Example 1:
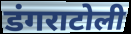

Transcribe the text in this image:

डंगराटोली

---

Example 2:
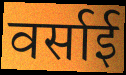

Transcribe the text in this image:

वर्साई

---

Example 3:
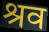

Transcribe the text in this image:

श्रव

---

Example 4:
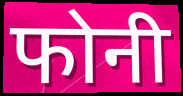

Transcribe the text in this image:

फोनी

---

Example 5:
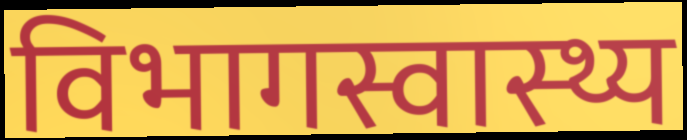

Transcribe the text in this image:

विभागस्वास्थ्य